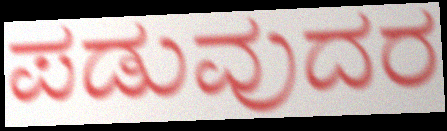
ಪಡುವುದರ